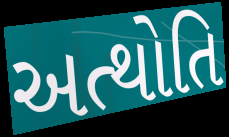
અત્થોતિ